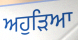
ਅਹੁੜਿਆ